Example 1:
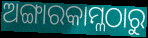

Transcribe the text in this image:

ଅଙ୍ଗାରକାମ୍ଳଠାରୁ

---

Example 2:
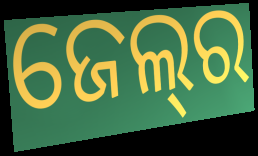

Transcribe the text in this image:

ଜେଲ୍‍ର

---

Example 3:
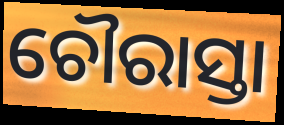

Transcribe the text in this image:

ଚୌରାସ୍ତା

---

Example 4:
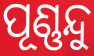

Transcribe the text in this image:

ପୂଣ୍ଣନ୍ଦୁ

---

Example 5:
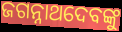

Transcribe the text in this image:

ଜଗନ୍ନାଥଦେବଙ୍କୁ